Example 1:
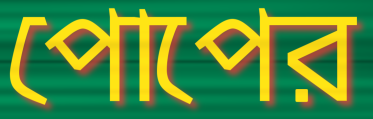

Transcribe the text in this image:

পোপের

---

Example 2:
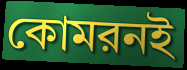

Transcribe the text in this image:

কোমরনই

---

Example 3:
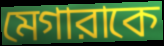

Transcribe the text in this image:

মেগারাকে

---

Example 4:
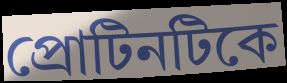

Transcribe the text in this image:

প্রোটিনটিকে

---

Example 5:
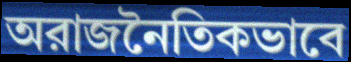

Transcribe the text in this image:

অরাজনৈতিকভাবে